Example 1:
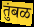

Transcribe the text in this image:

तुंबळ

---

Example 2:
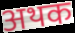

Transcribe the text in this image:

अथक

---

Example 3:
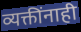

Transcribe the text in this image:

व्यक्तींनाही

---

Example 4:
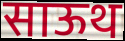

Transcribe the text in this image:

साऊथ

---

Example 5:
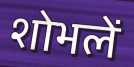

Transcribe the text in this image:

शोभलें